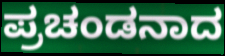
ಪ್ರಚಂಡನಾದ